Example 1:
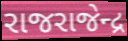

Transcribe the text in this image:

રાજરાજેન્દ્ર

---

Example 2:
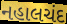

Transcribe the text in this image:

નહાલચંદ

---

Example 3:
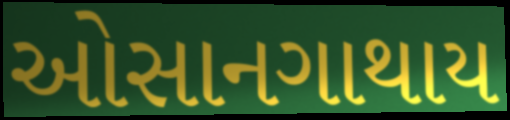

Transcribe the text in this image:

ઓસાનગાથાય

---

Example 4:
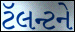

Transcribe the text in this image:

ટૅલન્ટને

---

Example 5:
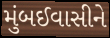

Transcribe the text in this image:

મુંબઈવાસીને